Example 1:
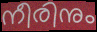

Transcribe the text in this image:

നീരിനും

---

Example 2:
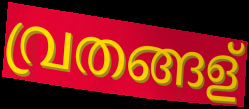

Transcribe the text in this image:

വ്രതങ്ങള്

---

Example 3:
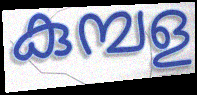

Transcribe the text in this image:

കുമ്പള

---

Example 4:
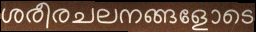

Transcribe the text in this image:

ശരീരചലനങ്ങളോടെ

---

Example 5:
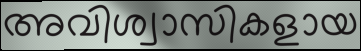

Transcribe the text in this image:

അവിശ്വാസികളായ